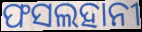
ଫସଲହାନୀ